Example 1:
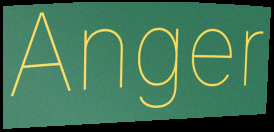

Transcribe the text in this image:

Anger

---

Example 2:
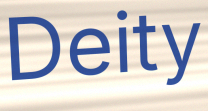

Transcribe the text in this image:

Deity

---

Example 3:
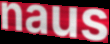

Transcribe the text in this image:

naus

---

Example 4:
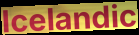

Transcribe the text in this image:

Icelandic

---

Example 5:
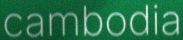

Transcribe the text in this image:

cambodia